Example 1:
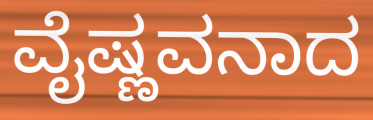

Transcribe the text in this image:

ವೈಷ್ಣವನಾದ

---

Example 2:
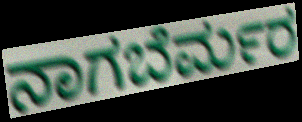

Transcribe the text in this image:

ನಾಗಬೆರ್ಮರ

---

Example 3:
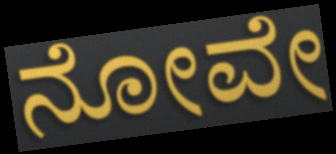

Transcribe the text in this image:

ನೋವೇ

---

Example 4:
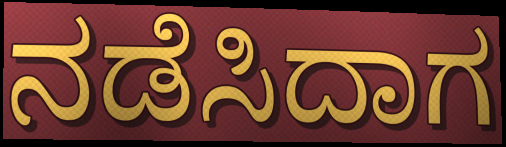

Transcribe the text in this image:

ನಡೆಸಿದಾಗ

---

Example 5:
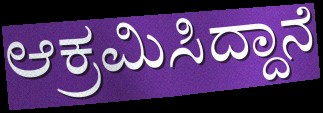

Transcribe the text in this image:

ಆಕ್ರಮಿಸಿದ್ದಾನೆ